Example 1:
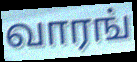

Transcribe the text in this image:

வாரங்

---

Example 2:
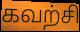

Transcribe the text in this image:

கவற்சி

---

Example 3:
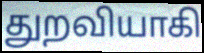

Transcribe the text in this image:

துறவியாகி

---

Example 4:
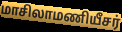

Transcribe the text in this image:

மாசிலாமணியீசர்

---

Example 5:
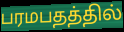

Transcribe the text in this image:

பரமபதத்தில்